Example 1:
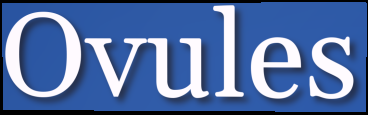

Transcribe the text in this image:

Ovules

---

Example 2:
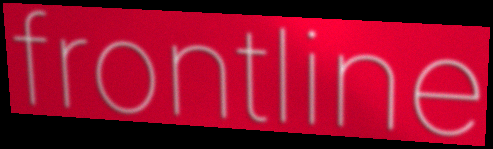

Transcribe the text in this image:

frontline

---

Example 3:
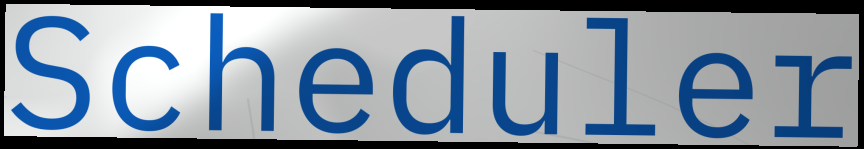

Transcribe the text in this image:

Scheduler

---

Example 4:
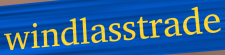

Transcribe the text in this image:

windlasstrade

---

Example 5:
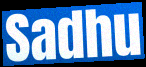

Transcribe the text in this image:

Sadhu